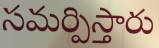
సమర్పిస్తారు